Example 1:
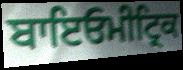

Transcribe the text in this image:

ਬਾਇਓਮੀਟ੍ਰਿਕ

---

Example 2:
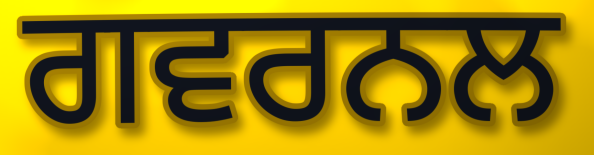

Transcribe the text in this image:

ਗਵਰਨਲ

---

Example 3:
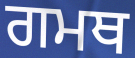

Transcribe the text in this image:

ਗਮਥ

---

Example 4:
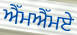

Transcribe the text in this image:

ਐੱਮਐੱਮਏ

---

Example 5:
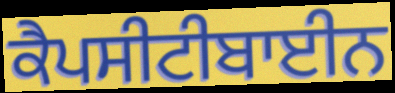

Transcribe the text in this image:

ਕੈਪਸੀਟੀਬਾਈਨ